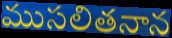
ముసలితనాన